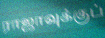
ராஜாவுக்குப்